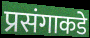
प्रसंगाकडे